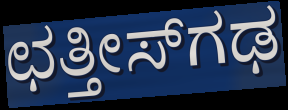
ಛತ್ತೀಸ್‍ಗಢ